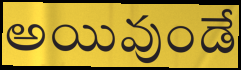
అయివుండే